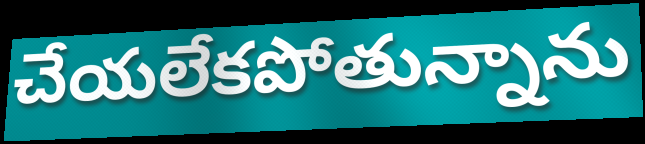
చేయలేకపోతున్నాను